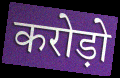
करोड़ो